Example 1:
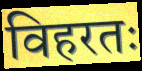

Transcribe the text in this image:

विहरतः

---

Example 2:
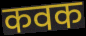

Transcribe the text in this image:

कवक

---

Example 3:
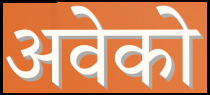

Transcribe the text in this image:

अवेको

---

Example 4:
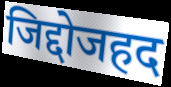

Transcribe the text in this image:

जिद्दोजहद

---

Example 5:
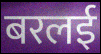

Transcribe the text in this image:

बरलई